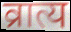
व्रात्य